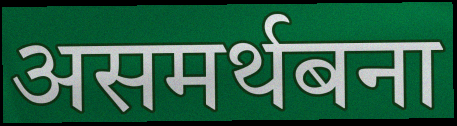
असमर्थबना